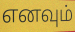
எனவும்